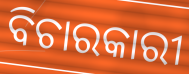
ବିଚାରକାରୀ